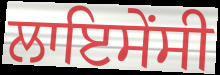
ਲਾਇਸੇਂਸੀ